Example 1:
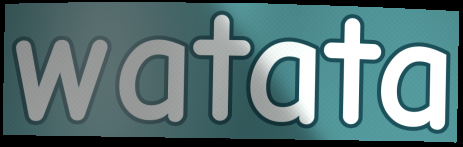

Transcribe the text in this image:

watata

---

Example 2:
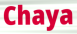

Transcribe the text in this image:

Chaya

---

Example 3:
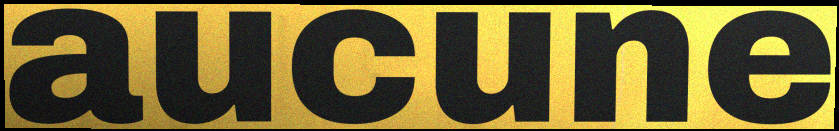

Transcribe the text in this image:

aucune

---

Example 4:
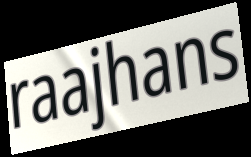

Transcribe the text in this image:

raajhans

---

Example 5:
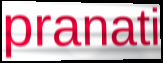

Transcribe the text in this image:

pranati